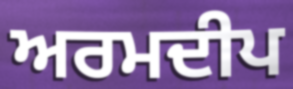
ਅਰਮਦੀਪ